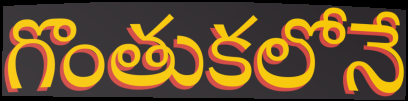
గొంతుకలోనే